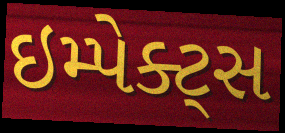
ઇમ્પેક્ટ્સ